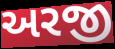
અરજી